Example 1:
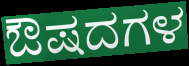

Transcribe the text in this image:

ಔಷದಗಳ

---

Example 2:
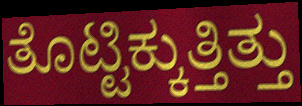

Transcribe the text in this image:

ತೊಟ್ಟಿಕ್ಕುತ್ತಿತ್ತು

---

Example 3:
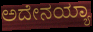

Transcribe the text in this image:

ಅದೇನಯ್ಯಾ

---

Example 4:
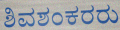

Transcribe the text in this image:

ಶಿವಶಂಕರರು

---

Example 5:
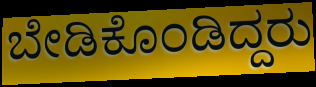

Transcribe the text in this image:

ಬೇಡಿಕೊಂಡಿದ್ದರು